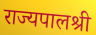
राज्यपालश्री